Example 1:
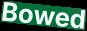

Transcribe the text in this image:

Bowed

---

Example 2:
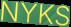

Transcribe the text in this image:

NYKS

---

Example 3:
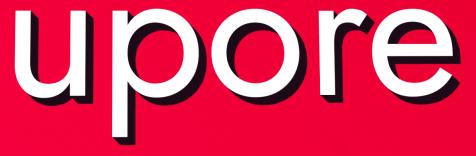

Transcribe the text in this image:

upore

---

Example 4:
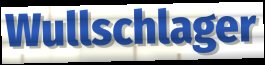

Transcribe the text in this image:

Wullschlager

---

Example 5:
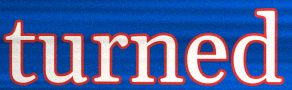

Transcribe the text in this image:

turned